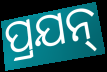
ପ୍ରଯନ୍